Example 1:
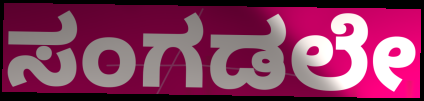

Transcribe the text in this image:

ಸಂಗಡಲೇ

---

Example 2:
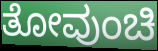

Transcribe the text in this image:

ತೋವುಂಚಿ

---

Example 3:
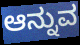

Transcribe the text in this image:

ಆನ್ನುವ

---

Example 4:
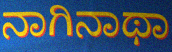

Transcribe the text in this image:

ನಾಗಿನಾಥಾ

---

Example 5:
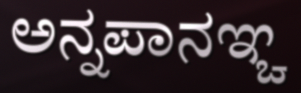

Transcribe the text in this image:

ಅನ್ನಪಾನಞ್ಚ